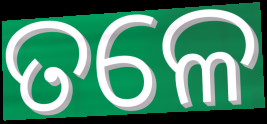
ତଳେ